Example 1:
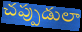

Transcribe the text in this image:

చప్పుడులా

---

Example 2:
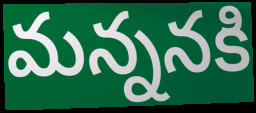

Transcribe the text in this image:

మన్ననకి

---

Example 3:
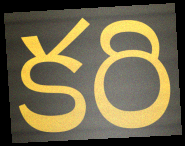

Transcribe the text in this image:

కరి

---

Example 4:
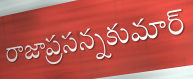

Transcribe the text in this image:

రాజాప్రసన్నకుమార్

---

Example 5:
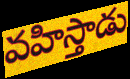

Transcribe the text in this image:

వహిస్తాడు